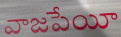
వాజపేయీ